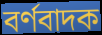
বৰ্ণবাদক